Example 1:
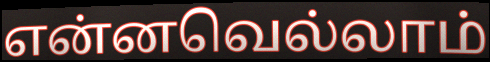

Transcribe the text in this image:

என்னவெல்லாம்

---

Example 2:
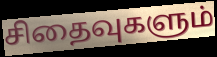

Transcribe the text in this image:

சிதைவுகளும்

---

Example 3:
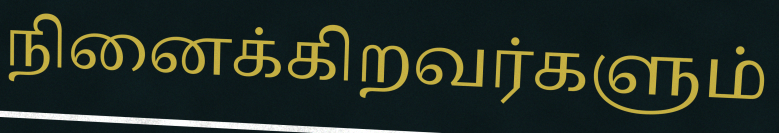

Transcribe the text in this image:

நினைக்கிறவர்களும்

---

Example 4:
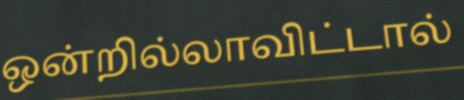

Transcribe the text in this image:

ஒன்றில்லாவிட்டால்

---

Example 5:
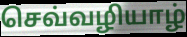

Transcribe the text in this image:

செவ்வழியாழ்